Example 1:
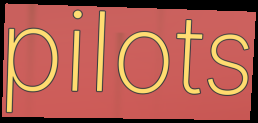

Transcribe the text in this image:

pilots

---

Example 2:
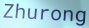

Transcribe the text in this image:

Zhurong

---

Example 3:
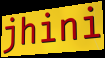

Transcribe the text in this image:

jhini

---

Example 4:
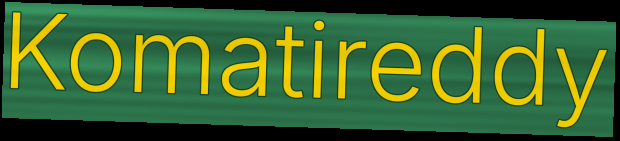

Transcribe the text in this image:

Komatireddy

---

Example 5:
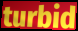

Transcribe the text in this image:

turbid